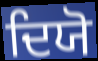
ਦਿਯੋ